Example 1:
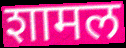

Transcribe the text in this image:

शामल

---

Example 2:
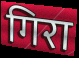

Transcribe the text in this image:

गिरा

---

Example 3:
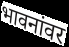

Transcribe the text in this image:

भावनांवर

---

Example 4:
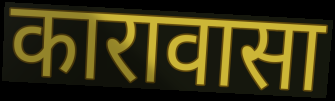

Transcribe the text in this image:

कारावासा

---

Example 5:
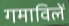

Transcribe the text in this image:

गमाविलें